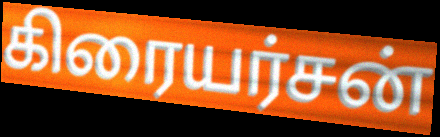
கிரையர்சன்